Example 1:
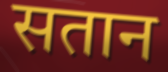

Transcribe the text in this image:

सतान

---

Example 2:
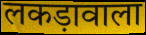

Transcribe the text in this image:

लकड़ावाला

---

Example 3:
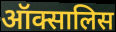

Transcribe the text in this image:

ऑक्सालिस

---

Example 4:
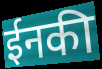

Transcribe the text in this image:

ईनकी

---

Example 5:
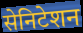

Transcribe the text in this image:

सेनिटेशन